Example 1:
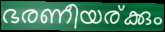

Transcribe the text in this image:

ഭരണീയര്ക്കും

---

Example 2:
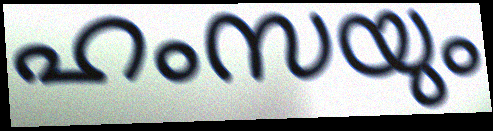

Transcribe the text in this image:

ഹംസയും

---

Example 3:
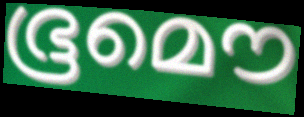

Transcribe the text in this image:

ഭൂമൌ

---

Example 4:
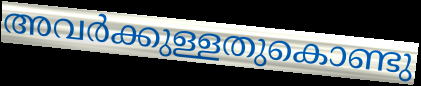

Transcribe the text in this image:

അവർക്കുള്ളതുകൊണ്ടു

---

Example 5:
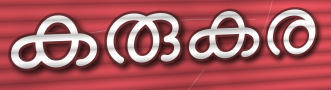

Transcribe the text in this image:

കരുകര